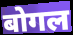
बोगल